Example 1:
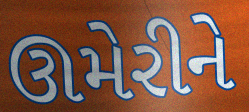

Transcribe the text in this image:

ઊમેરીને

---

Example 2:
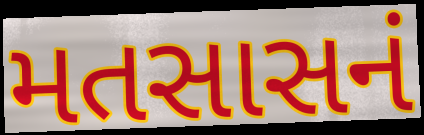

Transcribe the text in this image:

મતસાસનં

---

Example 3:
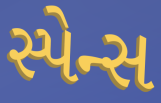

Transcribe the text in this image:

સ્પેન્સ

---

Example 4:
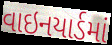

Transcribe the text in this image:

વાઇનયાર્ડમાં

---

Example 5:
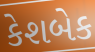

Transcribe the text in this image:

કેશબેક